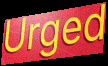
Urged